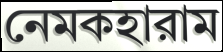
নেমকহারাম